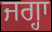
ਜਗ੍ਹਾ